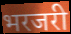
भरजरी